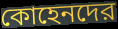
কোহেনদের